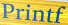
Printf